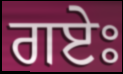
ਗਏਃ